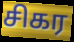
சிகர